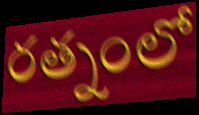
రత్నంలో